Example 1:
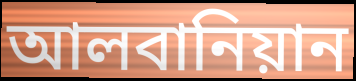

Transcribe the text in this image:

আলবানিয়ান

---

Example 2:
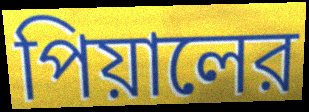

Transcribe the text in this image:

পিয়ালের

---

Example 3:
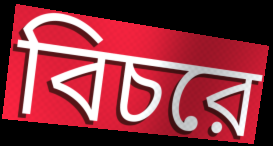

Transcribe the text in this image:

বিচরে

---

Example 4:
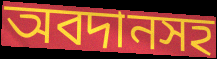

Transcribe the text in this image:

অবদানসহ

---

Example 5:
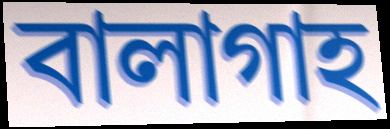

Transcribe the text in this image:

বালাগাহ